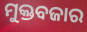
ମୁକ୍ତବଜାର